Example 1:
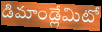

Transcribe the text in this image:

డిమాండ్లేమిటో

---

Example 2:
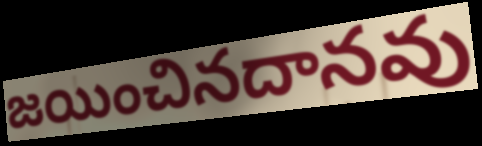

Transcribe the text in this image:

జయించినదానవు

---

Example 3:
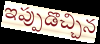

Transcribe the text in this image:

ఇప్పుడొచ్చిన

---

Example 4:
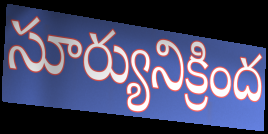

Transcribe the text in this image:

సూర్యునిక్రింద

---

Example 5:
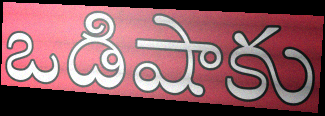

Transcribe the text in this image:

ఒడిషాకు